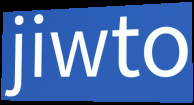
jiwto